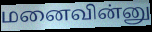
மனைவின்னு